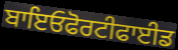
ਬਾਇਓਫੋਰਟੀਫਾਈਡ